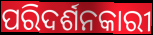
ପରିଦର୍ଶନକାରୀ